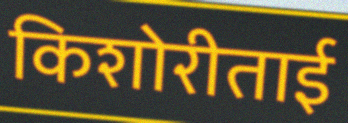
किशोरीताई